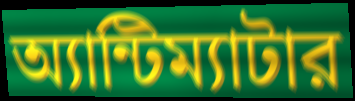
অ্যান্টিম্যাটার